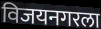
विजयनगरला